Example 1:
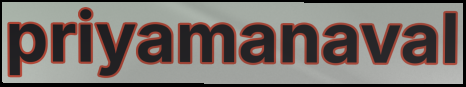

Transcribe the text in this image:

priyamanaval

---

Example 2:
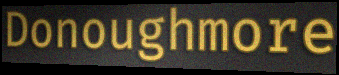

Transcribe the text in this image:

Donoughmore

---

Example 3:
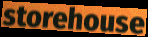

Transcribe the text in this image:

storehouse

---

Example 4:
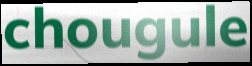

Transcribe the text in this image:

chougule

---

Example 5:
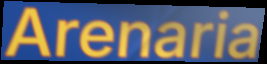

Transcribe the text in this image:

Arenaria